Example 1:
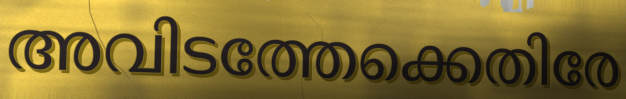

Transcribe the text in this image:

അവിടത്തേക്കെതിരേ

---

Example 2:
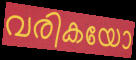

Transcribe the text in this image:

വരികയോ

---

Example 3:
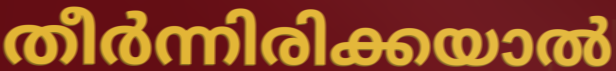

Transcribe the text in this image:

തീർന്നിരിക്കയാൽ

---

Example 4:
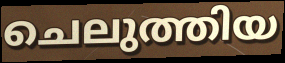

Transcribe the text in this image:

ചെലുത്തിയ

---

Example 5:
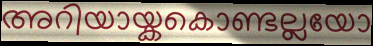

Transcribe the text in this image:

അറിയായ്കകൊണ്ടല്ലയോ